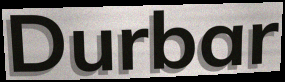
Durbar